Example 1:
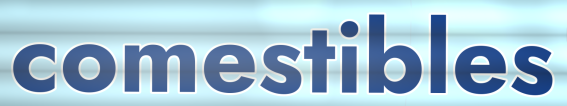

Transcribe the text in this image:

comestibles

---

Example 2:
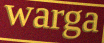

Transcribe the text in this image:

warga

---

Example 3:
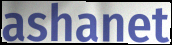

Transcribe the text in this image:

ashanet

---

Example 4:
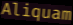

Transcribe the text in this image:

Aliquam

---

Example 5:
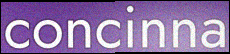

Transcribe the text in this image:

concinna